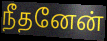
நீதனேன்